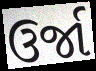
ઉર્જા